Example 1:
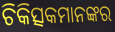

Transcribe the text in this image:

ଚିକିତ୍ସକମାନଙ୍କର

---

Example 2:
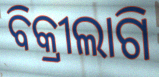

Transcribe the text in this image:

ବିକ୍ରୀଲାଗି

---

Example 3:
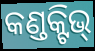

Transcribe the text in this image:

କଣ୍ଡକ୍ଟିଭ୍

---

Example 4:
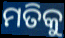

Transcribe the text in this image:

ମତିକୁ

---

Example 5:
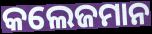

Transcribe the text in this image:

କଲେଜମାନ